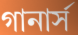
গানার্স